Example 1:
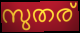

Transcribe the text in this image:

സുതര്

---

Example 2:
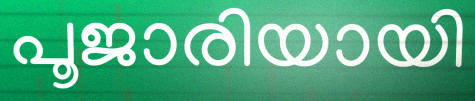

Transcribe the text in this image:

പൂജാരിയായി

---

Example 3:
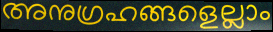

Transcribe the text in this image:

അനുഗ്രഹങ്ങളെല്ലാം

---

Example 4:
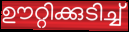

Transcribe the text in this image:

ഊറ്റിക്കുടിച്ച്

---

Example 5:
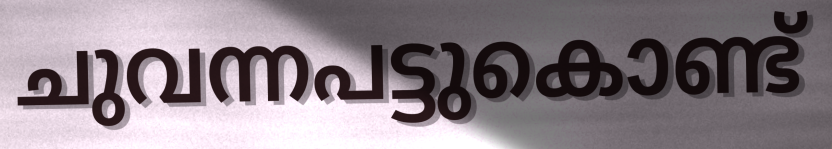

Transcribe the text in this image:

ചുവന്നപട്ടുകൊണ്ട്